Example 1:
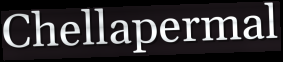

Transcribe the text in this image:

Chellapermal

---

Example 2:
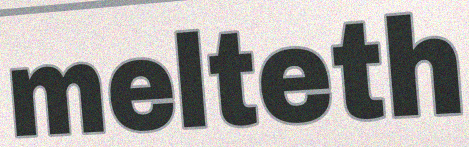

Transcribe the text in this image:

melteth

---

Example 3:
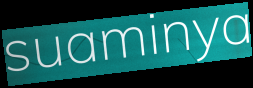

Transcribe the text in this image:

suaminya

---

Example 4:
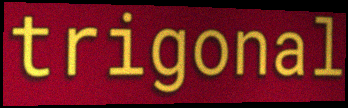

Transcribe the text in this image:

trigonal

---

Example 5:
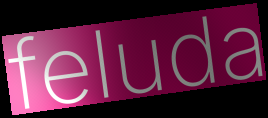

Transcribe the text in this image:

feluda